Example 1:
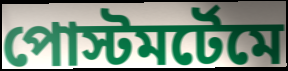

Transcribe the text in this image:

পোস্টমর্টেমে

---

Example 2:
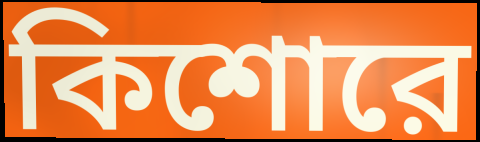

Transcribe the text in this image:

কিশোরে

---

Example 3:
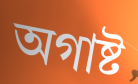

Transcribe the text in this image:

অগাষ্ট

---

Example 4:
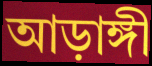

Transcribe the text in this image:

আড়াঙ্গী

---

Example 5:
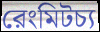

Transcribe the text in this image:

রেংমিটচ্য